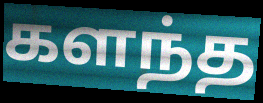
களந்த